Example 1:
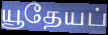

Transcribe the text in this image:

யூதேயப்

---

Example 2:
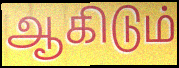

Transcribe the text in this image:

ஆகிடும்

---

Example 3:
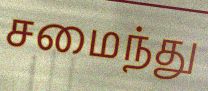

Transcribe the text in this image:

சமைந்து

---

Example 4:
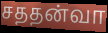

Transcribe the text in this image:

சததன்வா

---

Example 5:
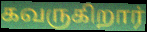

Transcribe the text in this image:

கவருகிறார்